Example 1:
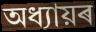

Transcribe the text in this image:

অধ্যায়ৰ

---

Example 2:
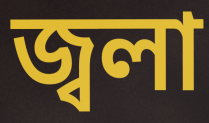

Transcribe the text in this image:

জ্বলা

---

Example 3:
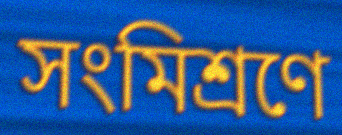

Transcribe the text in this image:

সংমিশ্ৰণে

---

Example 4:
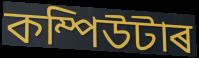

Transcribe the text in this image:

কম্পিউটাৰ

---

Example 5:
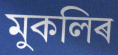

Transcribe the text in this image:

মুকলিৰ